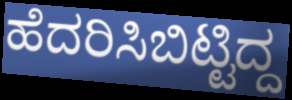
ಹೆದರಿಸಿಬಿಟ್ಟಿದ್ದ